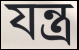
যন্ত্ৰ